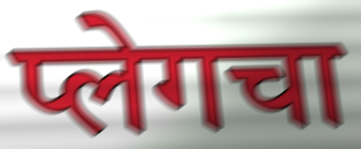
प्लेगचा